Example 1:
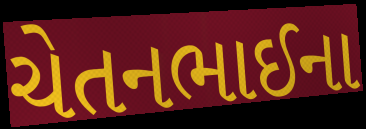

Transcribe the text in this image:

ચેતનભાઈના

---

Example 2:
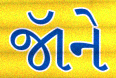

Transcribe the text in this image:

જૉને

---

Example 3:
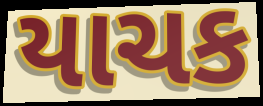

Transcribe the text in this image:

યાચક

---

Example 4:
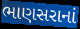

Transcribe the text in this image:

ભાણસરાનાં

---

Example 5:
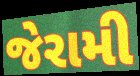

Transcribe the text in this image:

જેરામી